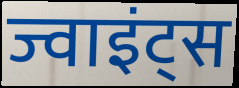
ज्वाइंट्स